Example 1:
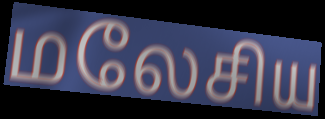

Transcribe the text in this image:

மலேசிய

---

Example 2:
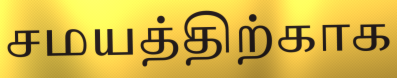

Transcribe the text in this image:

சமயத்திற்காக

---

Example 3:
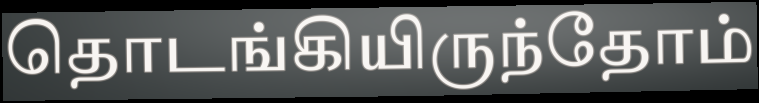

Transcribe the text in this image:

தொடங்கியிருந்தோம்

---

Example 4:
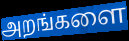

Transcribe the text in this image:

அறங்களை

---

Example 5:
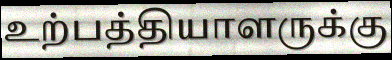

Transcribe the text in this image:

உற்பத்தியாளருக்கு